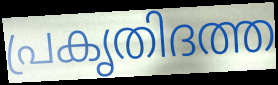
പ്രകൃതിദത്ത